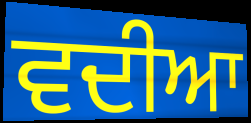
ਵਦੀਆ